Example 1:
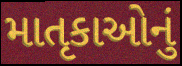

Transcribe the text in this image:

માતૃકાઓનું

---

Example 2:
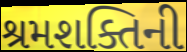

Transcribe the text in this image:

શ્રમશક્તિની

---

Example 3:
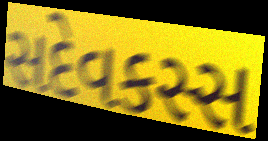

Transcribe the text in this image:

સદેવકસ્સ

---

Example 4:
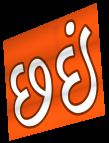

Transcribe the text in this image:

છઇં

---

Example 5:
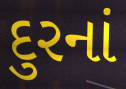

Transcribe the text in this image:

દુરનાં